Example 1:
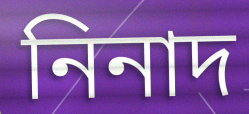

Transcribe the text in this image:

নিনাদ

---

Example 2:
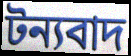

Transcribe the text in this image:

টন্যবাদ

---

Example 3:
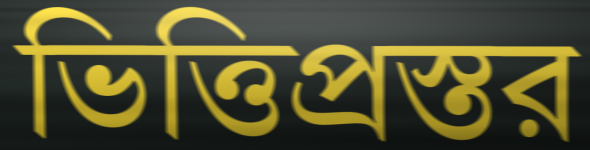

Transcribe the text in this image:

ভিত্তিপ্রস্তর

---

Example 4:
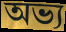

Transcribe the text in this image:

অভ্য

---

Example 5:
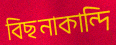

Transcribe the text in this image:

বিছনাকান্দি